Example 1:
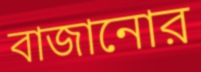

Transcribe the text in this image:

বাজানোর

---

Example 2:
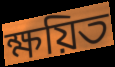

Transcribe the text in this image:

ক্ষয়িত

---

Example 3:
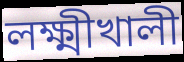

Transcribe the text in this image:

লক্ষ্মীখালী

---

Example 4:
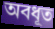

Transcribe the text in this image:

অবধূত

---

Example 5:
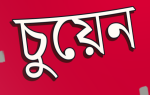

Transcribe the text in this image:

চুয়েন